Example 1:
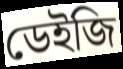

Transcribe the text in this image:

ডেইজি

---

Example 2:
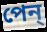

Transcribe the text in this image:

পেন্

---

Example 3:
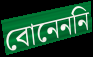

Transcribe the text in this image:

বোনেননি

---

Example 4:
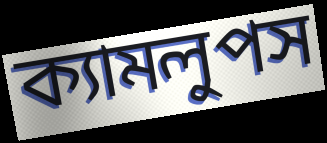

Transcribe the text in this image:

ক্যামলুপস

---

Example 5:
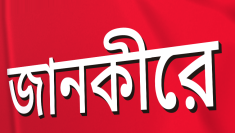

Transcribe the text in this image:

জানকীরে